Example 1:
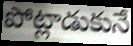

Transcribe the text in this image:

పోట్లాడుకునే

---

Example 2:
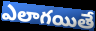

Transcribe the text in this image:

ఎలాగయితే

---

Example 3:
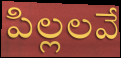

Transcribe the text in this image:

పిల్లలవే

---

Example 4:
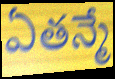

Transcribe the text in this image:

ఏతన్మే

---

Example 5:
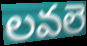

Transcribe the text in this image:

లవలె